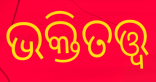
ଭକ୍ତିତତ୍ତ୍ୱ